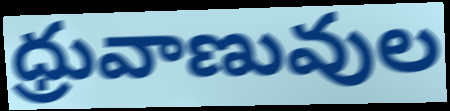
ధ్రువాణువుల